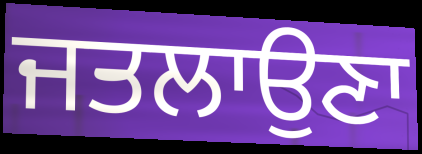
ਜਤਲਾਉਣਾ